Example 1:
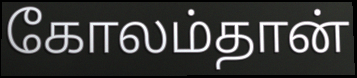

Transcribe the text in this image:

கோலம்தான்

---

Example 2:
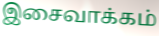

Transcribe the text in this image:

இசைவாக்கம்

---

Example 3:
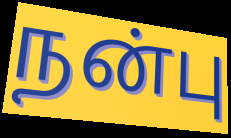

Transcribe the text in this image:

நன்பு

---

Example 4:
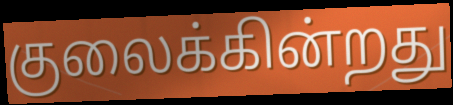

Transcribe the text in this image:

குலைக்கின்றது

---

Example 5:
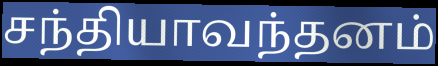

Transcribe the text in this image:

சந்தியாவந்தனம்